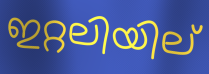
ഇറ്റലിയില്